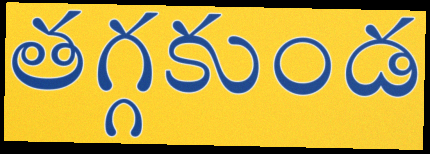
తగ్గకుండ